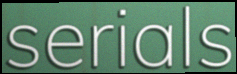
serials